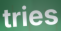
tries